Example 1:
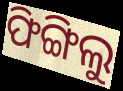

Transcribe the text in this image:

ଫିଙ୍ଗିଲୁ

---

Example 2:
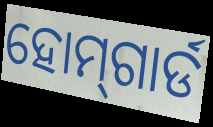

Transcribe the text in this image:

ହୋମ୍‌ଗାର୍ଡ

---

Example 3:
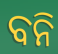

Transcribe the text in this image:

ବନି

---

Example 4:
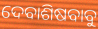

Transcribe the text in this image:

ଦେବାଶିଷବାବୁ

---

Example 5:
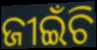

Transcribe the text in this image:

ଜୀଇଁଚି